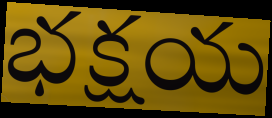
భక్షయ